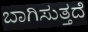
ಬಾಗಿಸುತ್ತದೆ